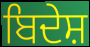
ਬਿਦੇਸ਼